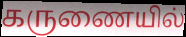
கருணையில்